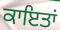
ਕਾਇਤਾਂ